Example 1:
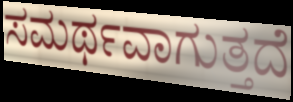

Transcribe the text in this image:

ಸಮರ್ಥವಾಗುತ್ತದೆ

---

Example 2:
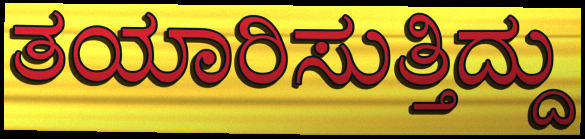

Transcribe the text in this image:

ತಯಾರಿಸುತ್ತಿದ್ದು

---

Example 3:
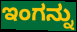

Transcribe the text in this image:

ಇಂಗನ್ನು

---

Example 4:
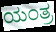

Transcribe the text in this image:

ಯಂತ್ರ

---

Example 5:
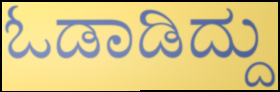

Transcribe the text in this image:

ಓಡಾಡಿದ್ದು